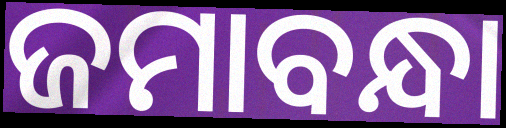
ଜମାବନ୍ଧା